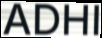
ADHI